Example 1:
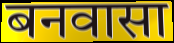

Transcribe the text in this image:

बनवासा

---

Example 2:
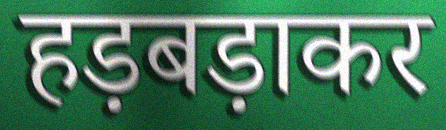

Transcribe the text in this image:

हड़बड़ाकर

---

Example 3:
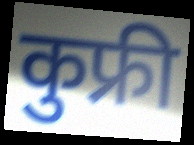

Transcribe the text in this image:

कुफ्री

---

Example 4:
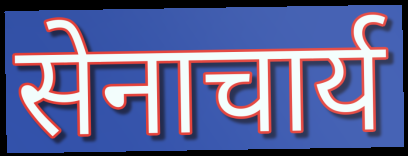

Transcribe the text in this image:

सेनाचार्य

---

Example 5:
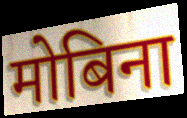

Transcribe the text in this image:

मोबिना